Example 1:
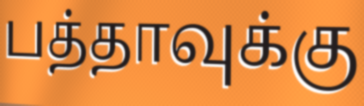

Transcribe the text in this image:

பத்தாவுக்கு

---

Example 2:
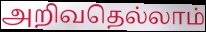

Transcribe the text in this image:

அறிவதெல்லாம்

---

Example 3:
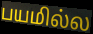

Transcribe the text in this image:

பயமில்ல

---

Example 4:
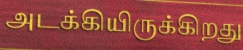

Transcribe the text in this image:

அடக்கியிருக்கிறது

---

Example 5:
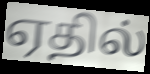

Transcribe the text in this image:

ஏதில்